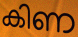
കിണ